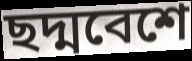
ছদ্মবেশে